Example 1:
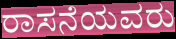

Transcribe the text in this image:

ರಾಸನೆಯವರು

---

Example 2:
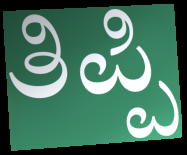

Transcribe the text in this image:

ತಿಪ್ಪಿ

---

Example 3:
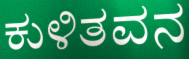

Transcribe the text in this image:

ಕುಳಿತವನ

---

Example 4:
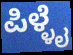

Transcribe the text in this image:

ಪಿಳ್ಳೈ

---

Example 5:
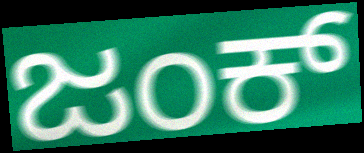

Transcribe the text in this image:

ಜಂಕ್